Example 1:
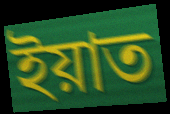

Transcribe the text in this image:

ইয়াত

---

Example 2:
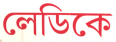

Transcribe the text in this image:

লেডিকে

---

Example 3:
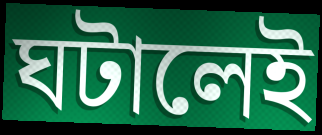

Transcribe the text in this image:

ঘটালেই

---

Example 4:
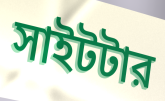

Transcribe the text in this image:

সাইটটার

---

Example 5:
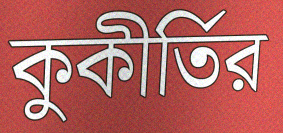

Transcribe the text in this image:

কুকীর্তির